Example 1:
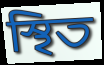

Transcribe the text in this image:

স্থিত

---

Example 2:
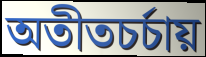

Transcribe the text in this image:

অতীতচর্চায়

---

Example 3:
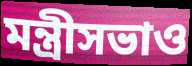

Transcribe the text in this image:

মন্ত্রীসভাও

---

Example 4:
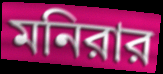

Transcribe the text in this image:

মনিরার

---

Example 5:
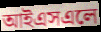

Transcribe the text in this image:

আইএসএলে